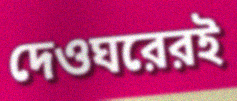
দেওঘরেরই